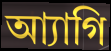
আ্যাগি